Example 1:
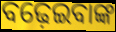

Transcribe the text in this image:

ବଢ଼େଇବାଙ୍କ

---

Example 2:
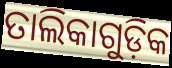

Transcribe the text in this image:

ତାଲିକାଗୁଡ଼ିକ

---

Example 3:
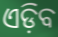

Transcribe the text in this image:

ଏଡ଼ିବ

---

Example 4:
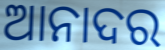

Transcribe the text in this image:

ଆନାଦର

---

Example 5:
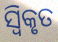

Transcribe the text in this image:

ସ୍ଵିକୃତ